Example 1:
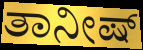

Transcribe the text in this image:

ತಾನೀಷ್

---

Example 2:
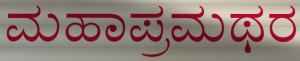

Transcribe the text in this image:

ಮಹಾಪ್ರಮಥರ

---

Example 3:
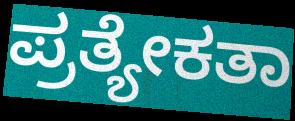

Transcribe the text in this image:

ಪ್ರತ್ಯೇಕತಾ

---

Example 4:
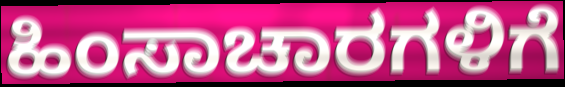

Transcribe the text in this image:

ಹಿಂಸಾಚಾರಗಳಿಗೆ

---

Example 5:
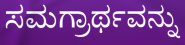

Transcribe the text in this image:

ಸಮಗ್ರಾರ್ಥವನ್ನು